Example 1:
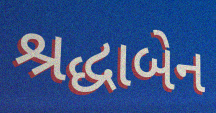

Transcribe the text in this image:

શ્રદ્ધાબેન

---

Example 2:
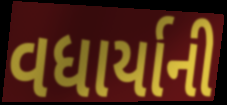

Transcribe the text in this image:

વધાર્યાની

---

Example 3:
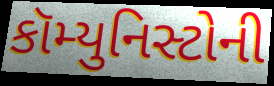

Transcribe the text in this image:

કૉમ્યુનિસ્ટોની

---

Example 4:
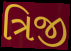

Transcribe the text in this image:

ત્રિજી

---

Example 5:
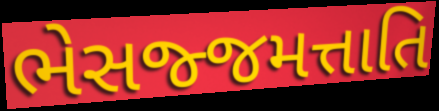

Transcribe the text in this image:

ભેસજ્જમત્તાતિ